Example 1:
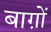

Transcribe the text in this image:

बाग़ों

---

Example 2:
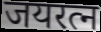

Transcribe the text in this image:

जयरत्न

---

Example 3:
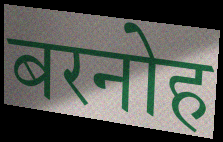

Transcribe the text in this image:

बरनोह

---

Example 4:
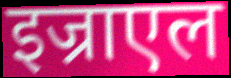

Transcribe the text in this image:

इज्राएल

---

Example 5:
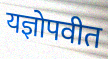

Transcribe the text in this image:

यज्ञोपवीत